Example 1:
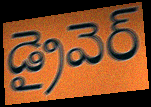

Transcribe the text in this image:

డ్రైవెర్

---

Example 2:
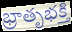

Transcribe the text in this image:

భ్రాతృభక్తి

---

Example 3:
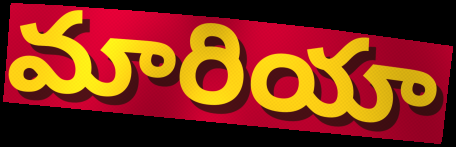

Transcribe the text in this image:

మారియా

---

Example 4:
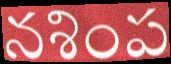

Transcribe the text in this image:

నశింప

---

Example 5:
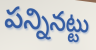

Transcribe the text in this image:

పన్నినట్టు